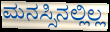
ಮನಸ್ಸಿನಲ್ಲಿಲ್ಲ